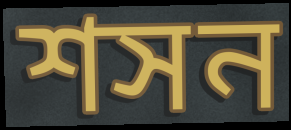
শসন